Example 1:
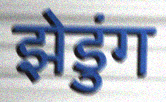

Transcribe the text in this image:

झेडुंग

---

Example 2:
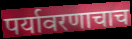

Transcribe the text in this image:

पर्यावरणाचाच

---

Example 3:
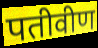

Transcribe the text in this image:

पतीवीण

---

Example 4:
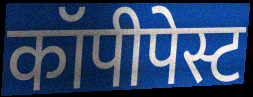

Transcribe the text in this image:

कॉपीपेस्ट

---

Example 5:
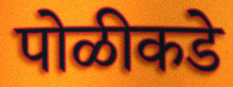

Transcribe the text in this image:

पोळीकडे